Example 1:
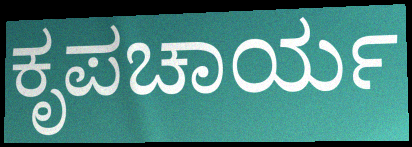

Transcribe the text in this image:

ಕೃಪಚಾರ್ಯ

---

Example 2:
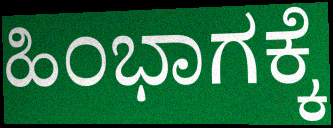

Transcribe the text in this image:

ಹಿಂಭಾಗಕ್ಕೆ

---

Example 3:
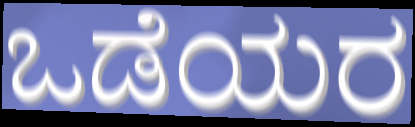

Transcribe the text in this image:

ಒಡೆಯರ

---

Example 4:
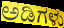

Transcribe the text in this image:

ಅಡಿಗಳು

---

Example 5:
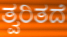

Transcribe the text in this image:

ತ್ವರಿತದೆ